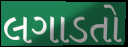
લગાડતો